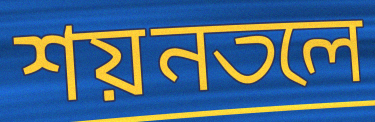
শয়নতলে